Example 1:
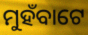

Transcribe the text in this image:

ମୁହଁବାଟେ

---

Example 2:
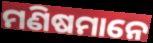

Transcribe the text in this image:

ମଣିଷମାନେ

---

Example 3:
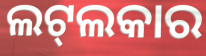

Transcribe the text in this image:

ଲଟ୍‌ଲକାର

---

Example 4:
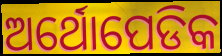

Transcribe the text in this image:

ଅର୍ଥୋପେଡିକ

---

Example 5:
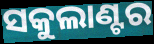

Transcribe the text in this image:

ସକୁଲାଣ୍ଟର